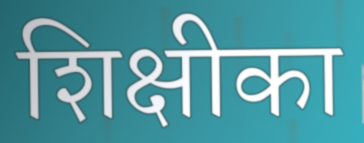
शिक्षीका